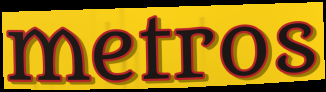
metros